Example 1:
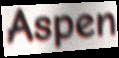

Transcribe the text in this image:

Aspen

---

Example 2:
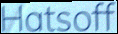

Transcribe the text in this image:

Hatsoff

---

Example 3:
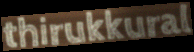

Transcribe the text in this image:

thirukkural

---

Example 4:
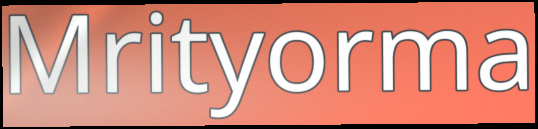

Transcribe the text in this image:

Mrityorma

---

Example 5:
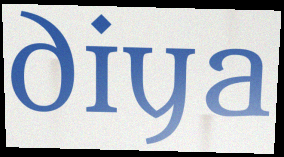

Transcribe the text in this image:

diya